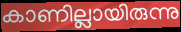
കാണില്ലായിരുന്നു